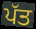
ਪੱਤ